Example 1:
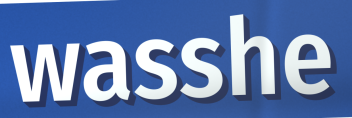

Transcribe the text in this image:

wasshe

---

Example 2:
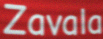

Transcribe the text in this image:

Zavala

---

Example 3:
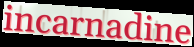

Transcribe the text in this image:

incarnadine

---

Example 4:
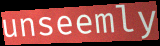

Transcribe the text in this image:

unseemly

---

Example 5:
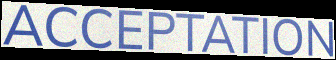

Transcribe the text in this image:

ACCEPTATION